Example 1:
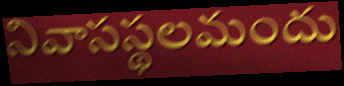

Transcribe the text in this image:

నివాసస్థలమందు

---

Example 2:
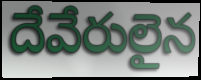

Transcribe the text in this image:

దేవేరులైన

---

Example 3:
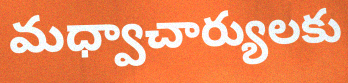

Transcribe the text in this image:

మధ్వాచార్యులకు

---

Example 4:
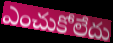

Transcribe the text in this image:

ఎంచుకోలేదు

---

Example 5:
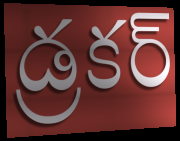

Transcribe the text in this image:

డ్రకర్